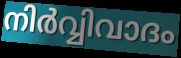
നിർവ്വിവാദം